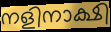
നളിനാക്ഷി